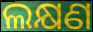
ଲକ୍ଷଣ